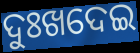
ଦୁଃଖଦେଇ